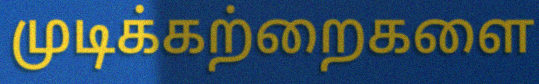
முடிக்கற்றைகளை